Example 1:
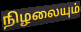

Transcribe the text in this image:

நிழலையும்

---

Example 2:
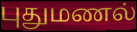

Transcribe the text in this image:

புதுமணல்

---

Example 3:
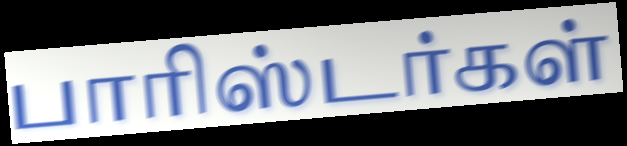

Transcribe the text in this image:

பாரிஸ்டர்கள்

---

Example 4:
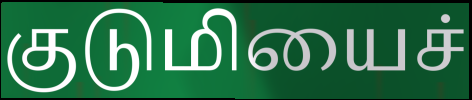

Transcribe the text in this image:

குடுமியைச்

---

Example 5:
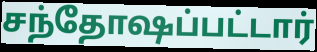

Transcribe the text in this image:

சந்தோஷப்பட்டார்